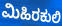
ಮಿಹಿರಕುಲಿ